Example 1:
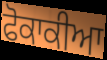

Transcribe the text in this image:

ਫੋਕਾਕੀਆ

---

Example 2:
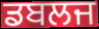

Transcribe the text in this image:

ਡਬਲਜ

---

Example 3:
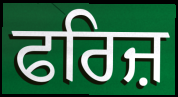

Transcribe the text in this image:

ਫਰਿਜ਼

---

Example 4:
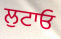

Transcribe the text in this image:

ਲੁਟਾਓ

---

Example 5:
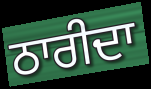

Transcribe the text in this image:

ਠਾਰੀਦਾ